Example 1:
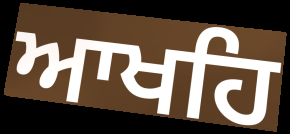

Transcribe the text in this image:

ਆਖਹਿ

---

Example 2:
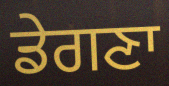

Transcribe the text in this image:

ਡੇਗਣਾ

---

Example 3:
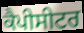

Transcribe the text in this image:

ਕੈਪੀਸੀਟਰ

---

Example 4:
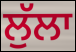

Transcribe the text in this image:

ਲੁੱਲਾ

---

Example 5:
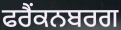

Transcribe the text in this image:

ਫਰੈਂਕਨਬਰਗ